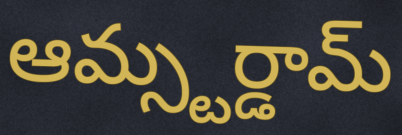
ఆమ్స్టర్డామ్